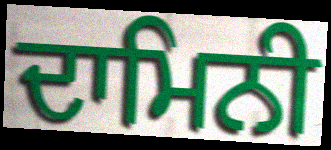
ਦਾਮਿਨੀ